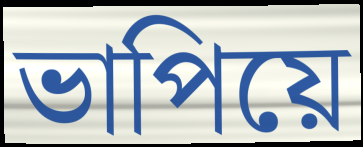
ভাপিয়ে